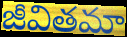
జీవితమా